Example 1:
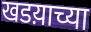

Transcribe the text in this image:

खडय़ाच्या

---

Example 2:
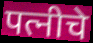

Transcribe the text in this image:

पत्‍नीचे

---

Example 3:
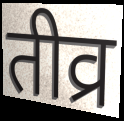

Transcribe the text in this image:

तीव्र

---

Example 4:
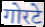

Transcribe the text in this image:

गोरटे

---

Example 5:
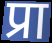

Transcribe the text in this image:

प्रा